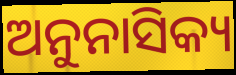
ଅନୁନାସିକ୍ୟ